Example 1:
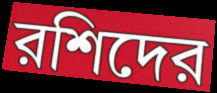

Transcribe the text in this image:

রশিদের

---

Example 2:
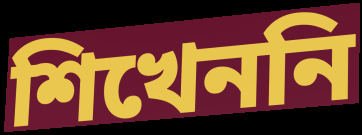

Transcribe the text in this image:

শিখেননি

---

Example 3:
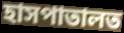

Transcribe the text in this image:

হাসপাতালত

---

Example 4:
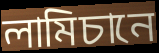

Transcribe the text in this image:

লামিচানে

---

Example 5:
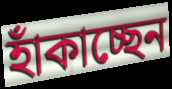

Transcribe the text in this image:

হাঁকাচ্ছেন